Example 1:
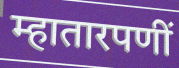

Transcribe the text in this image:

म्हातारपणीं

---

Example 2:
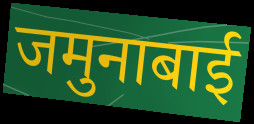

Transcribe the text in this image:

जमुनाबाई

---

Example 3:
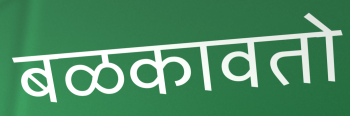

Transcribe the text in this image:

बळकावतो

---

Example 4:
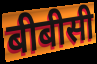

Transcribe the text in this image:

बीबीसी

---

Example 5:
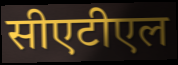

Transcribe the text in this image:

सीएटीएल